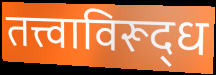
तत्त्वाविरूद्ध